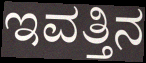
ಇವತ್ತಿನ